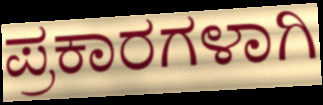
ಪ್ರಕಾರಗಳಾಗಿ